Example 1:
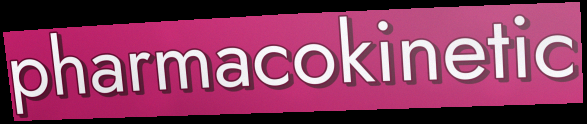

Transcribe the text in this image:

pharmacokinetic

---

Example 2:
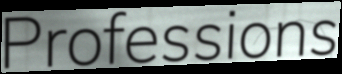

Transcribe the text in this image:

Professions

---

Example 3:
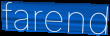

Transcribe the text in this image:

farend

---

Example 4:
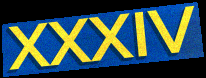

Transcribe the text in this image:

XXXIV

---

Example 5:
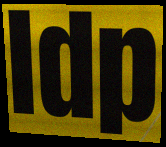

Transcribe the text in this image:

ldp